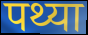
पथ्या